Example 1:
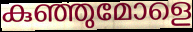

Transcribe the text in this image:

കുഞ്ഞുമോളെ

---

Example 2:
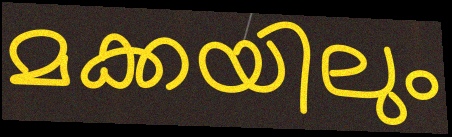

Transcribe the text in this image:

മക്കയിലും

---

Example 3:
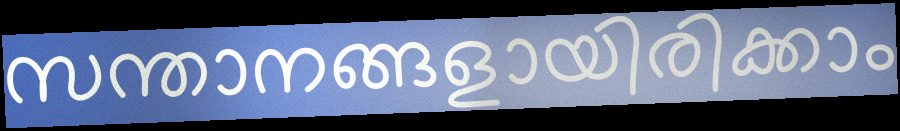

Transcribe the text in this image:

സന്താനങ്ങളായിരിക്കാം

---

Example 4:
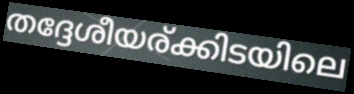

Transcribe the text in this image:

തദ്ദേശീയര്ക്കിടയിലെ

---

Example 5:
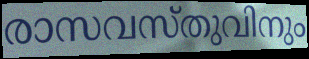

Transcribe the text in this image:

രാസവസ്തുവിനും